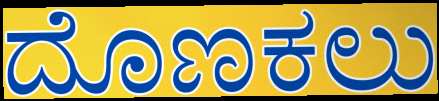
ದೊಣಕಲು